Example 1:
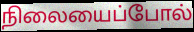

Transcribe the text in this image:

நிலையைப்போல்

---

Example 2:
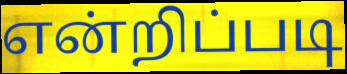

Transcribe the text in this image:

என்றிப்படி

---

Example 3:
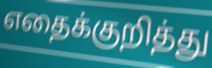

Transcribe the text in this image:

எதைக்குறித்து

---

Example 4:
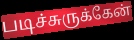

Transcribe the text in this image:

படிச்சுருக்கேன்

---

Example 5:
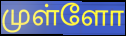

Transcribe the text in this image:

முள்ளோ